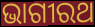
ଭାଗୀରଥ